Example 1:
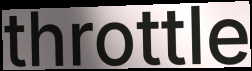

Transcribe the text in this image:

throttle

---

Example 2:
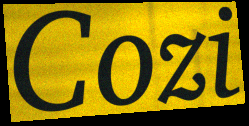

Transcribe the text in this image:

Cozi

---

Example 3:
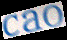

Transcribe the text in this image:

cao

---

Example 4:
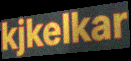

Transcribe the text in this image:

kjkelkar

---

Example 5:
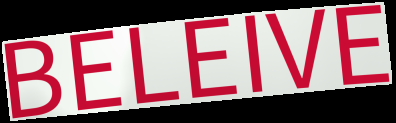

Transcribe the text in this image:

BELEIVE